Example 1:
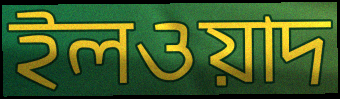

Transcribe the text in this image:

ইলওয়াদ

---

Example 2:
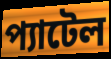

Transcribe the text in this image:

প্যাটেল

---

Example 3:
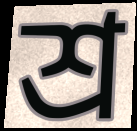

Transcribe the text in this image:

শ্র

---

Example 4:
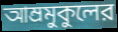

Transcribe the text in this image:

আম্রমুকুলের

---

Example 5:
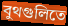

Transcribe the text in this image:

বুথগুলিতে